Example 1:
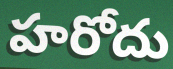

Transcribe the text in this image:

హరోదు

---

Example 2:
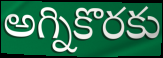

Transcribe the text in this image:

అగ్నికొరకు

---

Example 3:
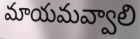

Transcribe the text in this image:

మాయమవ్వాలి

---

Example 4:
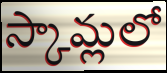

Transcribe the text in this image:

స్కామ్లలో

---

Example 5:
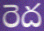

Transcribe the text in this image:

రెద